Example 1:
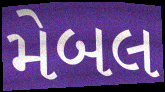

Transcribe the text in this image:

મેબલ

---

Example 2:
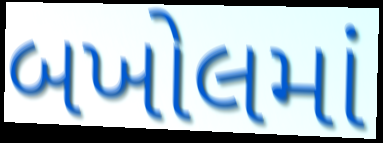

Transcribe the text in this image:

બખોલમાં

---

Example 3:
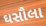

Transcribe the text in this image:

ઘસૌલા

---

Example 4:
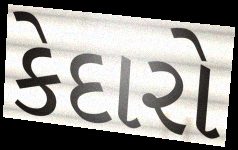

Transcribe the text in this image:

કેદારો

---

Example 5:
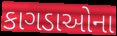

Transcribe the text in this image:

કાગડાઓના